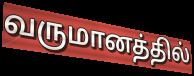
வருமானத்தில்